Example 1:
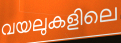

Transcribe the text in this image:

വയലുകളിലെ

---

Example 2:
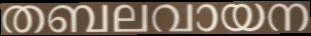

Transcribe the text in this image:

തബലവായന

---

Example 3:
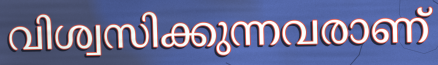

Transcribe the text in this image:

വിശ്വസിക്കുന്നവരാണ്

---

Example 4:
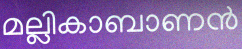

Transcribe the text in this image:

മല്ലികാബാണൻ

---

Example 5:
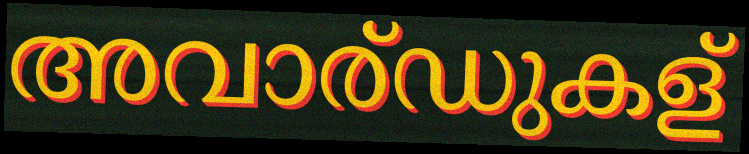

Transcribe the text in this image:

അവാര്ഡുകള്